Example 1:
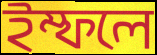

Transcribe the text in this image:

ইম্ফলে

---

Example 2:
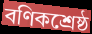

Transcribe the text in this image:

বণিকশ্রেষ্ঠ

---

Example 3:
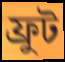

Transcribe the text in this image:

ফ্রুট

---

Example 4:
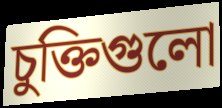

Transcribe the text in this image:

চুক্তিগুলো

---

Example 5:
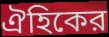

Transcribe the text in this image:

ঐহিকের